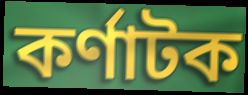
কৰ্ণাটক